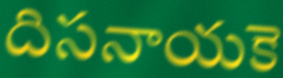
దిసనాయకె